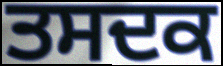
ਤਸਦਕ